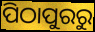
ପିଠାପୁରରୁ